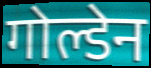
गोल्डेन